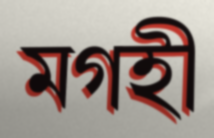
মগহী